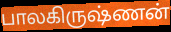
பாலகிருஷ்ணன்